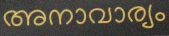
അനാവാര്യം